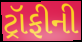
ટ્રૉફીની